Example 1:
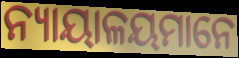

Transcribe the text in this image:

ନ୍ୟାୟାଳୟମାନେ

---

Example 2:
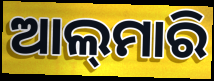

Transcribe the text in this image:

ଆଲ୍‌ମାରି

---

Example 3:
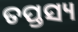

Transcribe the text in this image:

ତପ୍ତସ୍ୟ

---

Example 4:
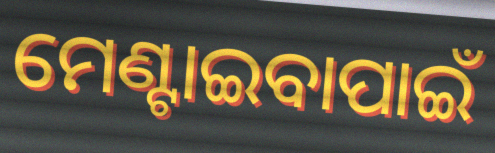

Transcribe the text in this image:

ମେଣ୍ଟାଇବାପାଇଁ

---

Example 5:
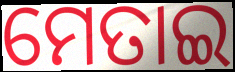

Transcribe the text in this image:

ମେତାଇ